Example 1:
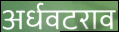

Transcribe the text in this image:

अर्धवटराव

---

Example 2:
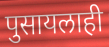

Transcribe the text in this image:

पुसायलाही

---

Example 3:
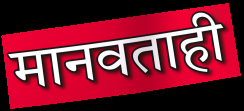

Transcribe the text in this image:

मानवताही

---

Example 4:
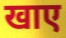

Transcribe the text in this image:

खाए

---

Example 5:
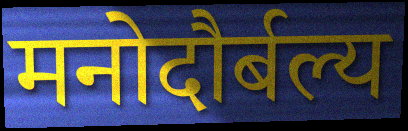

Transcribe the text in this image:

मनोदौर्बल्य